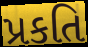
પ્રકતિ